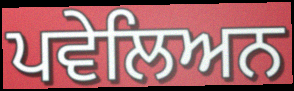
ਪਵੇਲਿਅਨ